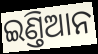
ଇଣ୍ତିଆନ